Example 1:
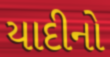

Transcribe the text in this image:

યાદીનો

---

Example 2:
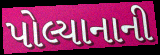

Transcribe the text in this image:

પોલ્યાનાની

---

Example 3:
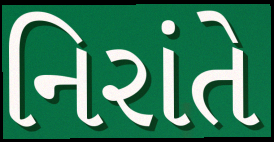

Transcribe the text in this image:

નિરાંતે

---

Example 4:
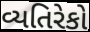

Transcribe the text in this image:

વ્યતિરેકો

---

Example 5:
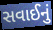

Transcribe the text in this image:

સવાઈનું